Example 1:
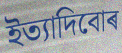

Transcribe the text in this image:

ইত্যাদিবোৰ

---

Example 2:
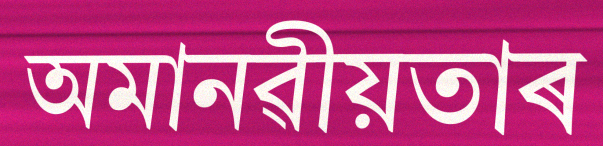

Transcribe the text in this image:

অমানৱীয়তাৰ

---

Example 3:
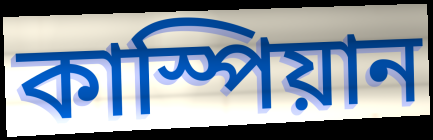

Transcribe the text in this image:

কাস্পিয়ান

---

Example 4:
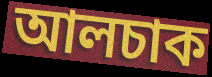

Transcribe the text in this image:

আলচাক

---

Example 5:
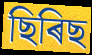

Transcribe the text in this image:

ছিৰিছ